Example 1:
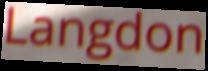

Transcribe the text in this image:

Langdon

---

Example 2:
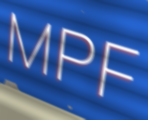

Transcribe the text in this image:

MPF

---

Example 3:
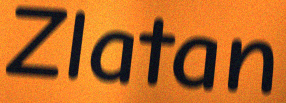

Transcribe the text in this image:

Zlatan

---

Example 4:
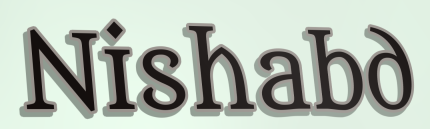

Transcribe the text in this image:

Nishabd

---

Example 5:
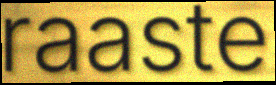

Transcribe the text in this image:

raaste